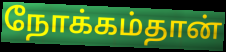
நோக்கம்தான்